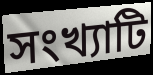
সংখ্যাটি